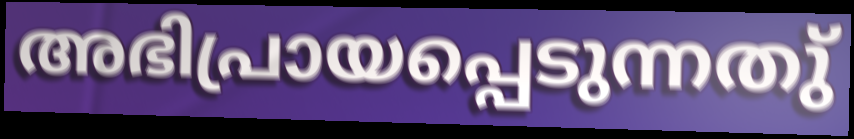
അഭിപ്രായപ്പെടുന്നതു്